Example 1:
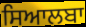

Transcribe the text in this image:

ਸਿਆਲਬਾ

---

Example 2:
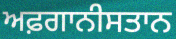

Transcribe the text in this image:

ਅਫ਼ਗਾਨੀਸਤਾਨ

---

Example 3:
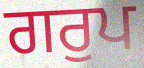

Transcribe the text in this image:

ਗਰੁਪ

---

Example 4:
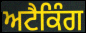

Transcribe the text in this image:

ਅਟੈਕਿੰਗ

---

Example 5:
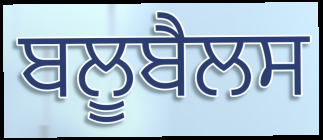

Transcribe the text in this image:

ਬਲੂਬੈਲਸ